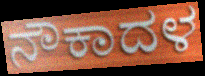
ನೌಕಾದಳ